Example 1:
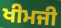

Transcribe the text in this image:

ਖੀਮਜੀ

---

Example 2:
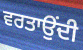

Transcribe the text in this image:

ਵਰਤਾਉਂਦੀ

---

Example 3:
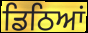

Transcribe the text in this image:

ਡਿਠਿਆਂ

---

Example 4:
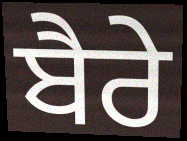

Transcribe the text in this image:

ਬੈਰੇ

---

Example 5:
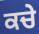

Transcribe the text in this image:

ਕਚੇ